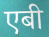
एबी